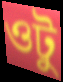
ওটু